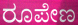
ರೂಪೇಣ